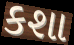
કશા